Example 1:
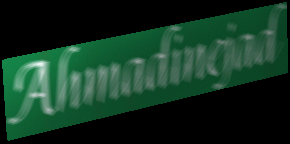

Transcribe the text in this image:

Ahmadinejad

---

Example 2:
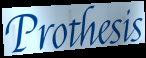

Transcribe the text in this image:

Prothesis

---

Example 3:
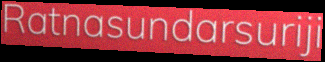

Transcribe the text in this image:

Ratnasundarsuriji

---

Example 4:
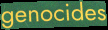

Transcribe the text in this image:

genocides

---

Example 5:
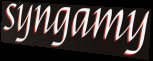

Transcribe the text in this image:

syngamy